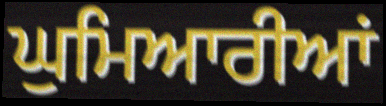
ਘੁਮਿਆਰੀਆਂ